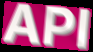
API